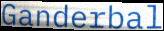
Ganderbal